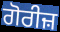
ਗੋਰੀਜ਼